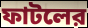
ফাটলের